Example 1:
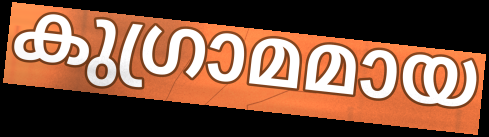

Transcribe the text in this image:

കുഗ്രാമമായ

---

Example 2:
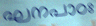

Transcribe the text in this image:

ഘനപാഠഃ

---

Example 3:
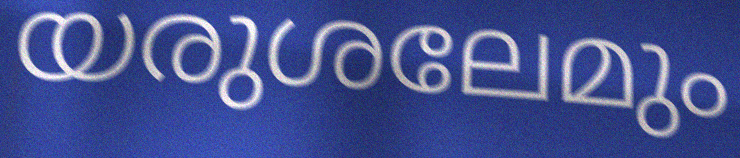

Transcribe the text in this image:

യരുശലേമും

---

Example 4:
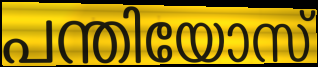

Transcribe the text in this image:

പന്തിയോസ്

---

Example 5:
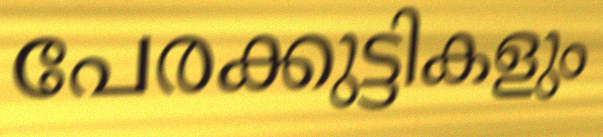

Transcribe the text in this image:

പേരക്കുട്ടികളും